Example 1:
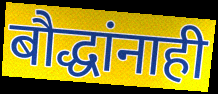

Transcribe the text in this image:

बौद्धांनाही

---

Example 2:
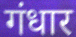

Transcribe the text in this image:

गंधार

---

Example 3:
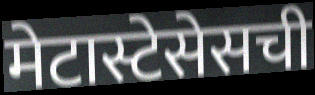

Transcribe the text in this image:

मेटास्टेसेसची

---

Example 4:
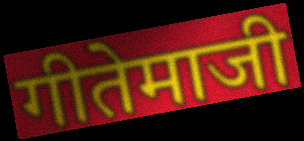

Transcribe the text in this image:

गीतेमाजी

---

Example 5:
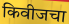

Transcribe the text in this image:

किवीजचा